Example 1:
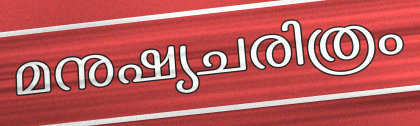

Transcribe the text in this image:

മനുഷ്യചരിത്രം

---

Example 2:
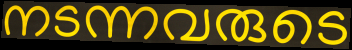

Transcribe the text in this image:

നടന്നവരുടെ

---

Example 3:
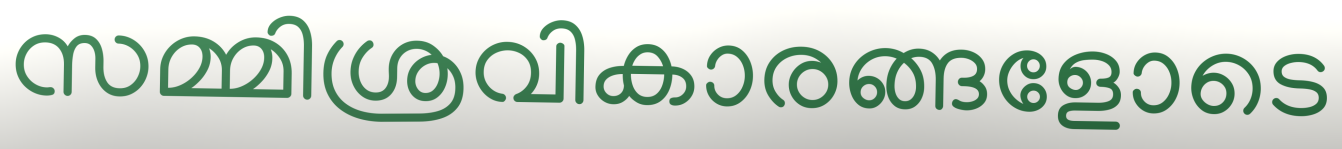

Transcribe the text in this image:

സമ്മിശ്രവികാരങ്ങളോടെ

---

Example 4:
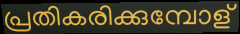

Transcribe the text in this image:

പ്രതികരിക്കുമ്പോള്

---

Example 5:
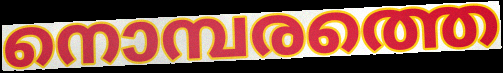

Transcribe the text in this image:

നൊമ്പരത്തെ